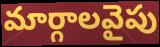
మార్గాలవైపు